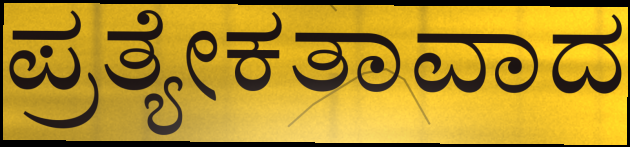
ಪ್ರತ್ಯೇಕತಾವಾದ